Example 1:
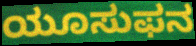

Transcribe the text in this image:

ಯೂಸುಫನ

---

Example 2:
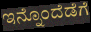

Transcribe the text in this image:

ಇನ್ನೊಂದೆಡೆಗೆ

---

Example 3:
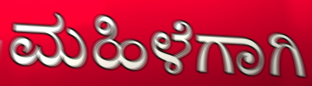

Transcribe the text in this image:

ಮಹಿಳೆಗಾಗಿ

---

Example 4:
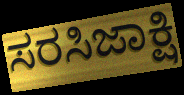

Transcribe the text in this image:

ಸರಸಿಜಾಕ್ಷಿ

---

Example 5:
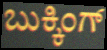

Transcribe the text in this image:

ಬುಕ್ಕಿಂಗ್